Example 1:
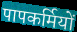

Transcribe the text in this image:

पापकर्मियों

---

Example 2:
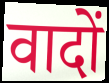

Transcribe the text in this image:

वादों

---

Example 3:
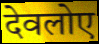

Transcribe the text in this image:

देवलोए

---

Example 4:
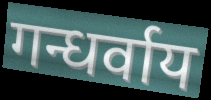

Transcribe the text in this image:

गन्धर्वाय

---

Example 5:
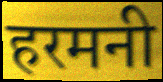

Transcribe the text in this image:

हरमनी